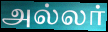
அல்லர்